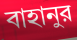
বাহানুর